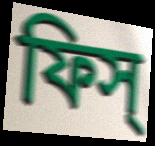
ফিস্